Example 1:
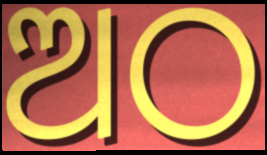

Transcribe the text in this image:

ଅଠ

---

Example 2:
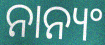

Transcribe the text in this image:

ନାନ୍ୟଂ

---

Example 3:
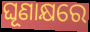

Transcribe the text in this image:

ଘୂଣାକ୍ଷରେ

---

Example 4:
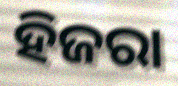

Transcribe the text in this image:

ହିଜରା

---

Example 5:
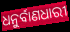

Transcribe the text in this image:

ଧନୁର୍ବାଣଧାରୀ